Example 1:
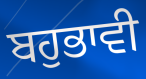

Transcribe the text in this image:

ਬਹੁਭਾਵੀ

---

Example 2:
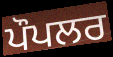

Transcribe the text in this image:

ਪੌਪਲਰ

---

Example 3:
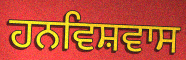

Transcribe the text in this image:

ਹਨਵਿਸ਼ਵਾਸ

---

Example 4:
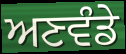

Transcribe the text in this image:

ਅਣਵੰਡੇ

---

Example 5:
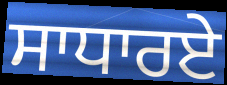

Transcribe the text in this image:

ਸਾਧਾਰਏ